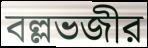
বল্লভজীর